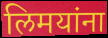
लिमयांना